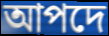
আপদে